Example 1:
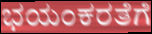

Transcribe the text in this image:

ಭಯಂಕರತೆಗೆ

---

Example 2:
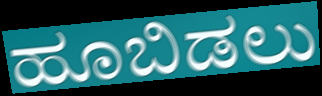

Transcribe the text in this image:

ಹೂಬಿಡಲು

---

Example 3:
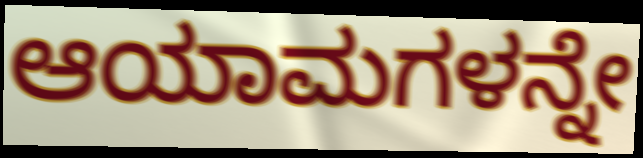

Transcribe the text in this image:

ಆಯಾಮಗಳನ್ನೇ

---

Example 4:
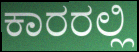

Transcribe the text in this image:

ಕಾರರಲ್ಲಿ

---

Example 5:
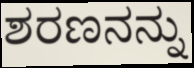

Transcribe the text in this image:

ಶರಣನನ್ನು